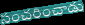
సంచరించాడు